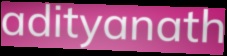
adityanath